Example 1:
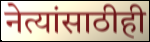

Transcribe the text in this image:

नेत्यांसाठीही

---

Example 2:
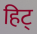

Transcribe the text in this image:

हिट्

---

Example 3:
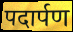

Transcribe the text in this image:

पदार्पण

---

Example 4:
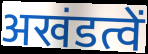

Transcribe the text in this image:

अखंडत्वें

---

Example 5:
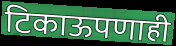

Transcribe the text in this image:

टिकाऊपणाही